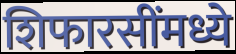
शिफारसींमध्ये